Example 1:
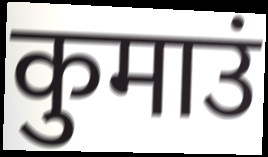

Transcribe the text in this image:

कुमाउं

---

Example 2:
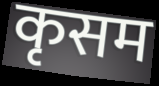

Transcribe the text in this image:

कृसम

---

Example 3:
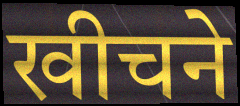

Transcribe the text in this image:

खीचने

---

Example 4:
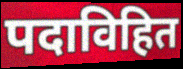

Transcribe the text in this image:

पदाविहित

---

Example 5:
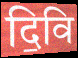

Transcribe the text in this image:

दि॒वि